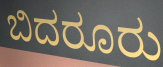
ಬಿದರೂರು